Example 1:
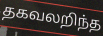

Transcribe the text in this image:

தகவலறிந்த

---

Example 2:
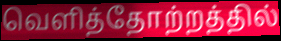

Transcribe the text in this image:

வெளித்தோற்றத்தில்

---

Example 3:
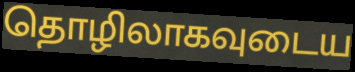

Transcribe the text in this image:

தொழிலாகவுடைய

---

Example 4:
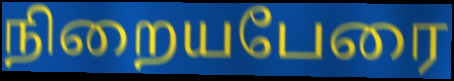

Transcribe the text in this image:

நிறையபேரை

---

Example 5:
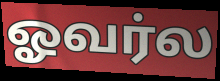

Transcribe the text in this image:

ஓவர்ல